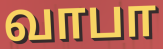
வாபா